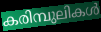
കരിമ്പുലികൾ